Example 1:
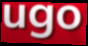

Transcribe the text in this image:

ugo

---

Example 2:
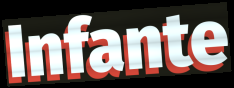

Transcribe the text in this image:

Infante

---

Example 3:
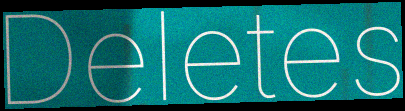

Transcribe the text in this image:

Deletes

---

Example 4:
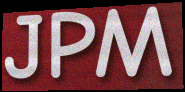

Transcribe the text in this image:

JPM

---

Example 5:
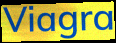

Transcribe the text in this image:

Viagra